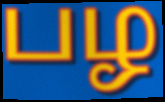
பழ